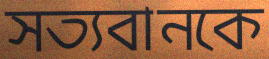
সত্যবানকে